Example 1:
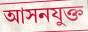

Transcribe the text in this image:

আসনযুক্ত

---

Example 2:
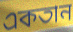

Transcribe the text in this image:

একতান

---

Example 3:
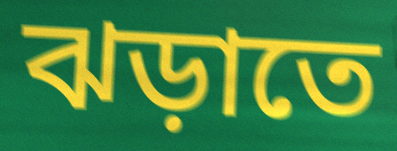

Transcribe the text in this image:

ঝড়াতে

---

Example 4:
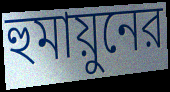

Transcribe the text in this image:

হুমায়ুনের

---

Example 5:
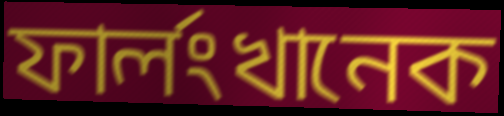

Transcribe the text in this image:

ফার্লংখানেক